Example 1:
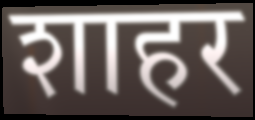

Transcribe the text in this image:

शाहर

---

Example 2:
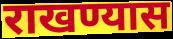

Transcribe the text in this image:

राखण्यास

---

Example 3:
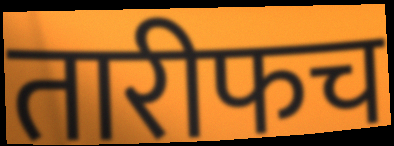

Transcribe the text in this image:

तारीफच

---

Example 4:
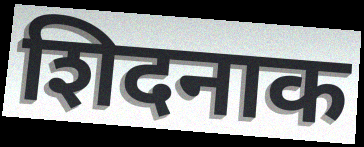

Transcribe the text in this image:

शिदनाक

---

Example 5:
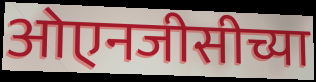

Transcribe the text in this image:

ओएनजीसीच्या